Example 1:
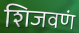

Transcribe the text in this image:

शिजवणं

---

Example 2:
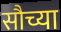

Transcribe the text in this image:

सौच्या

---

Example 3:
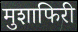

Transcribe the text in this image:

मुशाफिरी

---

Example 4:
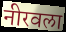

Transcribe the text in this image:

नीरवला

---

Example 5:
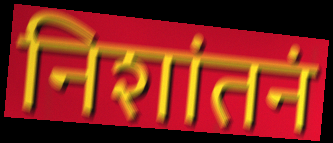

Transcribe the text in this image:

निशांतनं